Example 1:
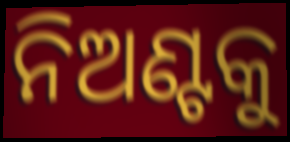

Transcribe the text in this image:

ନିଅଣ୍ଟକୁ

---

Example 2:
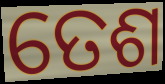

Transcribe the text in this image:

ତେଶ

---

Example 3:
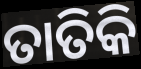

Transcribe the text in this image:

ତାତିକି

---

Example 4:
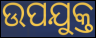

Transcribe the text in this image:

ଉପଯୁକ୍ତ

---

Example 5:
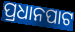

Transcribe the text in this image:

ପ୍ରଧାନପାଟ